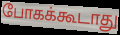
போகக்கூடாது